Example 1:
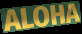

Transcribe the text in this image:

ALOHA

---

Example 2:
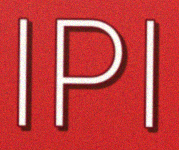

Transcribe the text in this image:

IPI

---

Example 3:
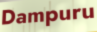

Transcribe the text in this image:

Dampuru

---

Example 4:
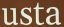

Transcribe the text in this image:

usta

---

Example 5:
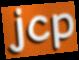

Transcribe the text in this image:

jcp